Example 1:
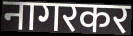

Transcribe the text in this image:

नागरकर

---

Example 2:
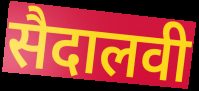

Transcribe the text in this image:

सैदालवी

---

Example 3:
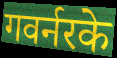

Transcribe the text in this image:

गवर्नरके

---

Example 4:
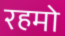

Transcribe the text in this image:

रहमो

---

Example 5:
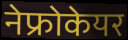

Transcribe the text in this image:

नेफ्रोकेयर